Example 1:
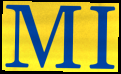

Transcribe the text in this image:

MI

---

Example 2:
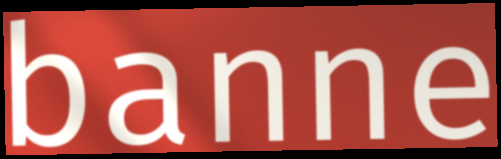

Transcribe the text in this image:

banne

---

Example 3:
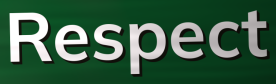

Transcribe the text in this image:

Respect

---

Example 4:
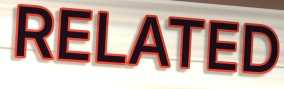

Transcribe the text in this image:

RELATED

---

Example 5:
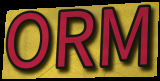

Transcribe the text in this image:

ORM